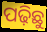
ପଢ଼ିଛୁ